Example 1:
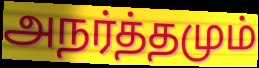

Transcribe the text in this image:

அநர்த்தமும்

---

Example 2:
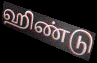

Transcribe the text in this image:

ஹிண்டு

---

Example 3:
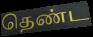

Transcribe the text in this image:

தெண்ட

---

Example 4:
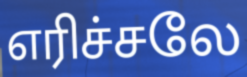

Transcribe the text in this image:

எரிச்சலே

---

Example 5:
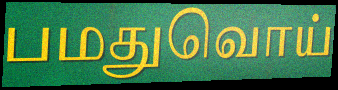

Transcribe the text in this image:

பமதுவொய்